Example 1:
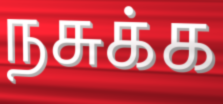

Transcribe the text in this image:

நசுக்க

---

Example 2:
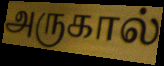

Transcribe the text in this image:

அருகால்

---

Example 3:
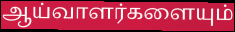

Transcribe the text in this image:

ஆய்வாளர்களையும்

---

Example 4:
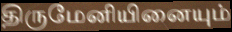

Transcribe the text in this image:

திருமேனியினையும்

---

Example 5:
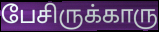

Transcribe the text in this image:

பேசிருக்காரு